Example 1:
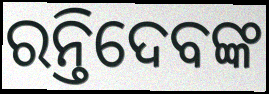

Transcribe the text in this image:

ରନ୍ତିଦେବଙ୍କ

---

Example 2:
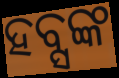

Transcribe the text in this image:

ହବ୍ସଙ୍କ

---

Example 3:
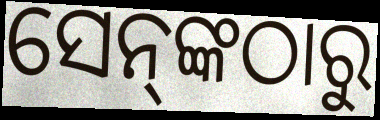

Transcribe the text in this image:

ସେନ୍‌ଙ୍କଠାରୁ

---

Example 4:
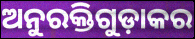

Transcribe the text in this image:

ଅନୁରକ୍ତିଗୁଡ଼ାକର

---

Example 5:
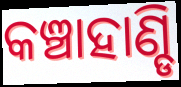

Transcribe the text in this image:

କଞ୍ଚାହାଣ୍ଡି